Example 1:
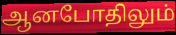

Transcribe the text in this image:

ஆனபோதிலும்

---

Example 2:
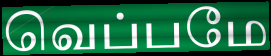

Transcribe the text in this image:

வெப்பமே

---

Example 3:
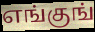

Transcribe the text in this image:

எங்குங்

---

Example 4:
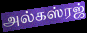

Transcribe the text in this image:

அல்கஸ்ரஜ்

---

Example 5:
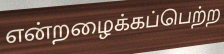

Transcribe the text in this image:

என்றழைக்கப்பெற்ற